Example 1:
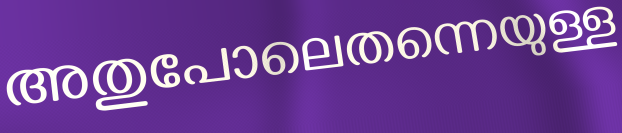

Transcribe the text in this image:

അതുപോലെതന്നെയുള്ള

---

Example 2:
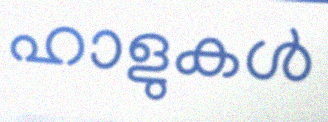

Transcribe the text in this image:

ഹാളുകൾ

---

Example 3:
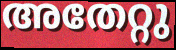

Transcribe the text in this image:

അതേറ്റു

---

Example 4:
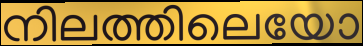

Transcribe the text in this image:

നിലത്തിലെയോ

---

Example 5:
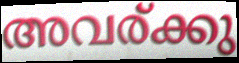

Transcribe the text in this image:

അവര്ക്കു